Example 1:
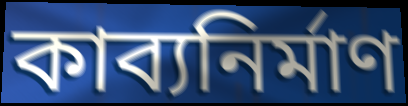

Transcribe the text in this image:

কাব্যনির্মাণ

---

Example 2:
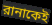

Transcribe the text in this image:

রানাকেই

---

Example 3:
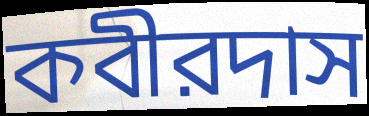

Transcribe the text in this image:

কবীরদাস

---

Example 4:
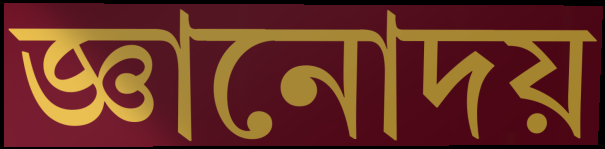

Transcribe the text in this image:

জ্ঞানোদয়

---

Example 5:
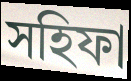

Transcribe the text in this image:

সহিফা